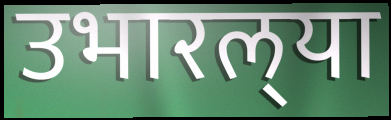
उभारल्या